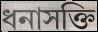
ধনাসক্তি